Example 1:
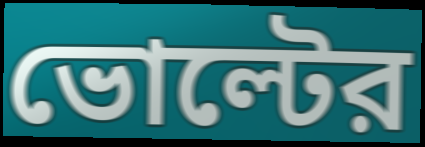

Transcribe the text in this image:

ভোল্টের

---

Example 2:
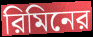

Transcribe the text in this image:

রিমিনের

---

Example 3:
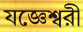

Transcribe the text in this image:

যজ্ঞেশ্বরী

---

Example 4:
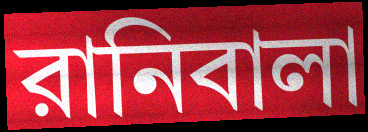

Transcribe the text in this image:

রানিবালা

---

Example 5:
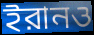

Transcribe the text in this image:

ইরানও